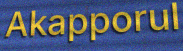
Akapporul